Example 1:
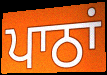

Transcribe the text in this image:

ਪਾਠਾਂ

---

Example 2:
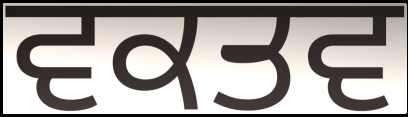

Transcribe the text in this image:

ਵਕਤਵ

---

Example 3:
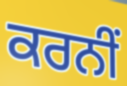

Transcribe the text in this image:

ਕਰਨੀਂ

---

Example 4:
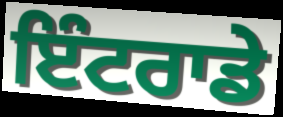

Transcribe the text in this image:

ਇੰਟਰਾਡੇ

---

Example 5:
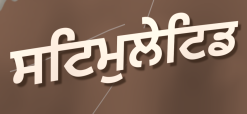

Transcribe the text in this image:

ਸਟਿਮੁਲੇਟਿਡ